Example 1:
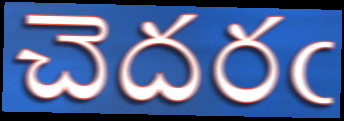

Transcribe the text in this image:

చెదరఁ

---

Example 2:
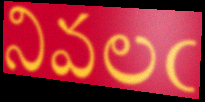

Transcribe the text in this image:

నివలఁ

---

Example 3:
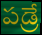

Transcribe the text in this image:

పడ్రే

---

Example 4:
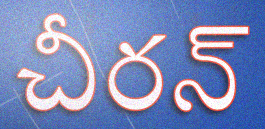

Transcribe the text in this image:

చీరన్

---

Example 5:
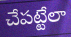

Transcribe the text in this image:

చేపట్టేలా